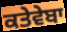
ਕਤੇਵੇਬਾ